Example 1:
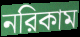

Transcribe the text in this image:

নরিকাম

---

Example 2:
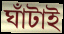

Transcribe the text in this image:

ঘাঁটাই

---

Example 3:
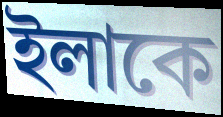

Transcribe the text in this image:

ইলাকে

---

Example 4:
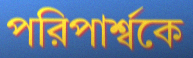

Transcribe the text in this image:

পরিপার্শ্বকে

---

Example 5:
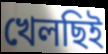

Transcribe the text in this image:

খেলছিই